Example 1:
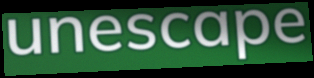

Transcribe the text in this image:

unescape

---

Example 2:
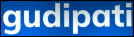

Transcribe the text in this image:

gudipati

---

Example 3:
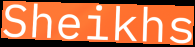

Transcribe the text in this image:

Sheikhs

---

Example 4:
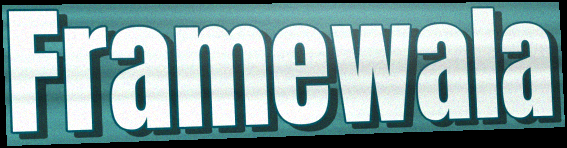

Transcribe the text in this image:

Framewala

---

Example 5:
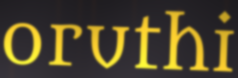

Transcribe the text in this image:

oruthi